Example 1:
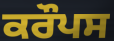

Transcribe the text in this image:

ਕਰੌਪਸ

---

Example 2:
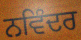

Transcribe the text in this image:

ਨਵਿੰਦਰ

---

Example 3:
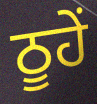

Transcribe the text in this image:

ਠੂਹੇਂ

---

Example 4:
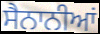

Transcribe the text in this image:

ਸੈਨਾਨੀਆਂ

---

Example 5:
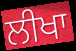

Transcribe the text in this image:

ਲੀਖਾ